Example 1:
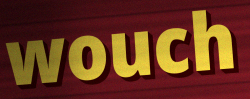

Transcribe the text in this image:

wouch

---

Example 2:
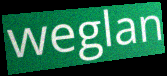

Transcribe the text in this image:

weglan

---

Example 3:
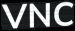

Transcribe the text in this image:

VNC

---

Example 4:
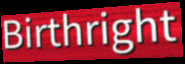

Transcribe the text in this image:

Birthright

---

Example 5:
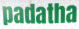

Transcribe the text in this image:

padatha